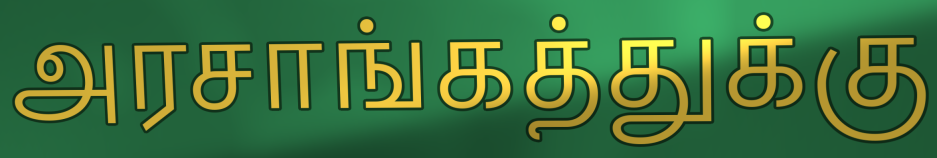
அரசாங்கத்துக்கு